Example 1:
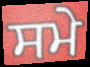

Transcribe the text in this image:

ਸਮੇ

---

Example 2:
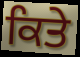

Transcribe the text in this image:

ਕਿਤੇ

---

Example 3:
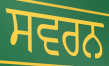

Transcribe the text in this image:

ਸਵਰਨ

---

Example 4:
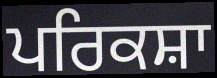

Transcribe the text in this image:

ਪਰਿਕਸ਼ਾ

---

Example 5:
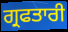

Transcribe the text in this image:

ਗ੍ਰਫਤਾਰੀ